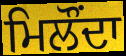
ਮਿਲੌਂਦਾ